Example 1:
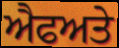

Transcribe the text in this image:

ਐਫਅਤੇ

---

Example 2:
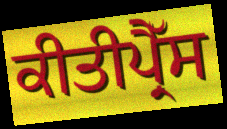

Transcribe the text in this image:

ਕੀਤੀਪ੍ਰੈੱਸ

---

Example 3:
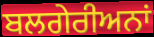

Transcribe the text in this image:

ਬਲਗੇਰੀਅਨਾਂ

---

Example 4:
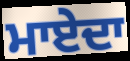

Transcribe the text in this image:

ਮਾਏਦਾ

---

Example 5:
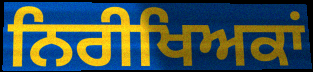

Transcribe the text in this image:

ਨਿਰੀਖਿਅਕਾਂ